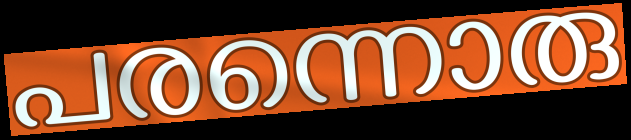
പരന്നൊരു